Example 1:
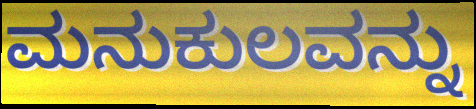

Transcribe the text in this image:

ಮನುಕುಲವನ್ನು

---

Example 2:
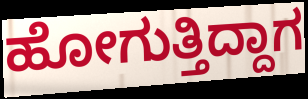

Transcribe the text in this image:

ಹೋಗುತ್ತಿದ್ದಾಗ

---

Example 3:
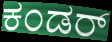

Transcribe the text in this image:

ಕಂಡರ್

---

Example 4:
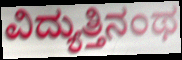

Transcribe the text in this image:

ವಿದ್ಯುತ್ತಿನಂಥ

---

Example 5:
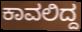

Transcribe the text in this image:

ಕಾವಲಿದ್ದ